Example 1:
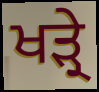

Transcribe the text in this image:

ਖੜ੍ਰੇ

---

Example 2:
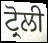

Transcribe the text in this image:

ਟ੍ਰੋਲੀ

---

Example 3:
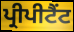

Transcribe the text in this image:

ਪ੍ਰੀਪੀਟੈਂਟ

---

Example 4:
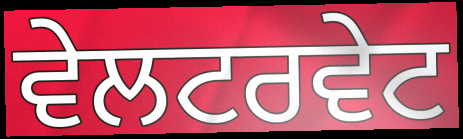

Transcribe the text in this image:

ਵੇਲਟਰਵੇਟ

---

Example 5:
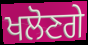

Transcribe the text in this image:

ਖਲੋਣਗੇ